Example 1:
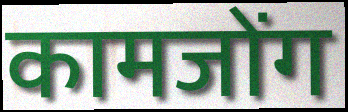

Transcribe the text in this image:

कामजोंग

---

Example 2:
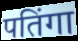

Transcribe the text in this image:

पतिंगा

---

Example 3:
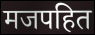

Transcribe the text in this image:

मजपहित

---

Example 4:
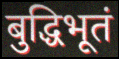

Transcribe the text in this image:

बुद्धिभूतं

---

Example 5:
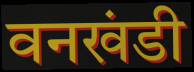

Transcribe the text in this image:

वनखंडी